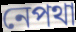
নেপথা